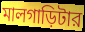
মালগাড়িটার